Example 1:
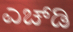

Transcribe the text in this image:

ಎಚ್‍ಡಿ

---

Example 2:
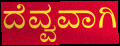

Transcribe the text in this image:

ದೆವ್ವವಾಗಿ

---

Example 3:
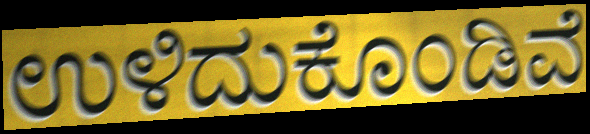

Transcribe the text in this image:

ಉಳಿದುಕೊಂಡಿವೆ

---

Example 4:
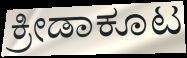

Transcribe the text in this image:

ಕ್ರೀಡಾಕೂಟ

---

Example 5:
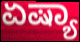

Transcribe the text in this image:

ಏಷ್ಯಾ